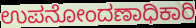
ಉಪನೋಂದಣಾಧಿಕಾರಿ